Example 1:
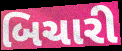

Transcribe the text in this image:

બિચારી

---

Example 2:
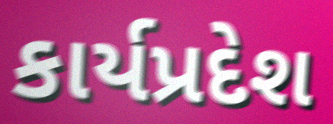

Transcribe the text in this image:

કાર્યપ્રદેશ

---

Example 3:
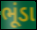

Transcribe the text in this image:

ભૂંડા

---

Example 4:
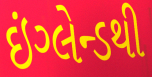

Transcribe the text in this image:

ઇંગ્લેન્ડથી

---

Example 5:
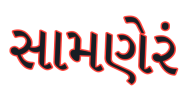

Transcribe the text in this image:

સામણેરં